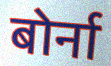
बोर्ना